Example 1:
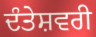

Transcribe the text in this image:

ਦੰਤੇਸ਼ਵਰੀ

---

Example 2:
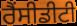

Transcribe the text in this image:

ਰੈਂਸੀਡੀਟੀ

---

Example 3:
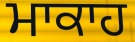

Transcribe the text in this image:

ਮਾਕਾਹ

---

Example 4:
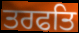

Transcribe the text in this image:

ਤਰਫਤਿ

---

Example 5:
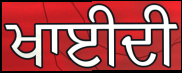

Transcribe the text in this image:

ਖਾਈਦੀ